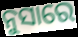
ନୁସାରେ